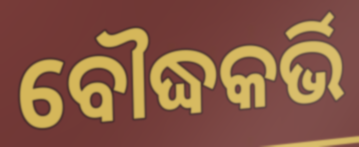
ବୌଦ୍ଧକର୍ଭି